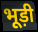
भूड़ी